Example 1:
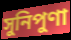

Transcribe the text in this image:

সুনিপুণা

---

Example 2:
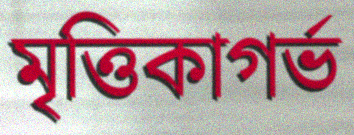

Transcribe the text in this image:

মৃত্তিকাগর্ভ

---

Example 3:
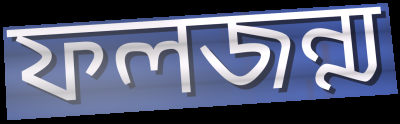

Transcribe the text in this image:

ফলজন্ম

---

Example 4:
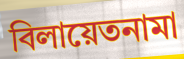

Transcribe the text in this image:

বিলায়েতনামা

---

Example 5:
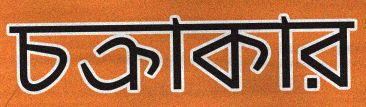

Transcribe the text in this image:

চক্রাকার